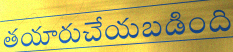
తయారుచేయబడింది